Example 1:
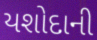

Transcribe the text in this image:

યશોદાની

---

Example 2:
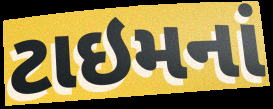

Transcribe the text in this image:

ટાઇમનાં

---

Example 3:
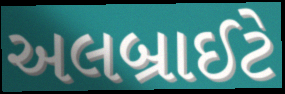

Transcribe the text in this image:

અલબ્રાઈટે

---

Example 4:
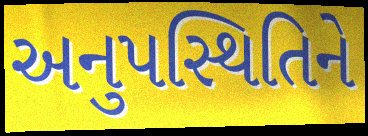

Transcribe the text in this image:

અનુપસ્થિતિને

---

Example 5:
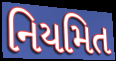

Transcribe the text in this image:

નિયમિત